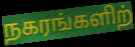
நகரங்களிற்